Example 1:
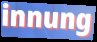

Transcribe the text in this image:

innung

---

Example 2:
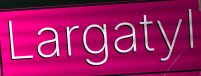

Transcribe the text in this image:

Largatyl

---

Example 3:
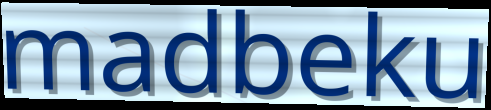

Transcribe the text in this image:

madbeku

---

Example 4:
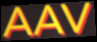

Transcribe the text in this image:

AAV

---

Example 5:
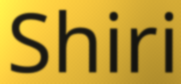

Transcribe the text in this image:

Shiri